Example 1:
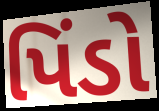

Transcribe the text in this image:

પિંડો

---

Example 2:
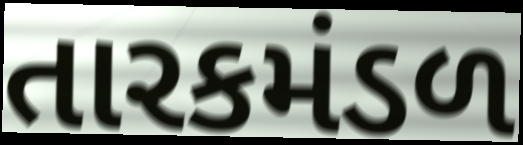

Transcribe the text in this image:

તારકમંડળ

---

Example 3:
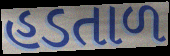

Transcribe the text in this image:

હડતાળ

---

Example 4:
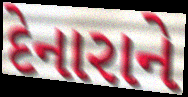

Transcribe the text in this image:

દેનારાને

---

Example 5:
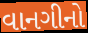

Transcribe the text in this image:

વાનગીનો